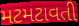
મટમટાવતી